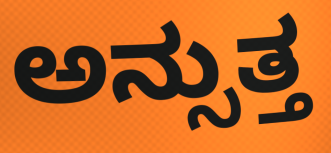
ಅನ್ಸುತ್ತ